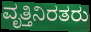
ವೃತ್ತಿನಿರತರು